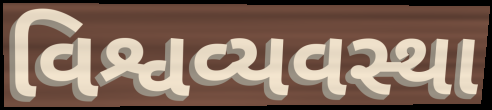
વિશ્વવ્યવસ્થા